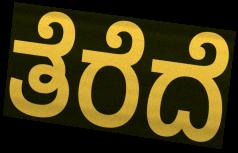
ತೆರೆದೆ